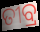
ତୀବ୍ର